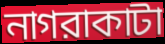
নাগরাকাটা